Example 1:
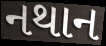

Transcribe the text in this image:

નથાન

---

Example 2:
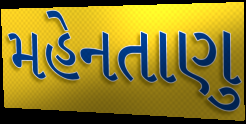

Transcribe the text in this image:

મહેનતાણુ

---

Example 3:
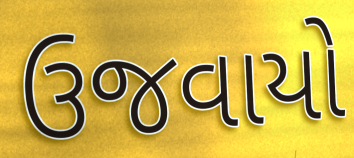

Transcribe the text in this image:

ઉજવાયો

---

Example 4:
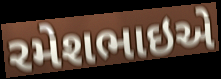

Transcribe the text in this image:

રમેશભાઇએ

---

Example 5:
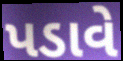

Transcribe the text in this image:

પડાવે